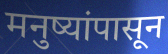
मनुष्यांपासून